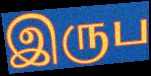
இருப